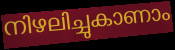
നിഴലിച്ചുകാണാം